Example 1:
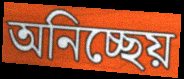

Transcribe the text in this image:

অনিচ্ছেয়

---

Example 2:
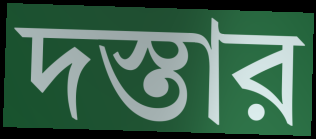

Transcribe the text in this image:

দস্তার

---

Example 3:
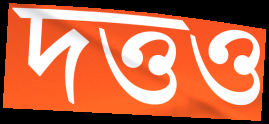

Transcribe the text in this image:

দত্তও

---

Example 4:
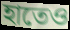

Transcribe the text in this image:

হাতেও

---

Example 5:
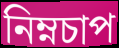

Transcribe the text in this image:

নিম্নচাপ